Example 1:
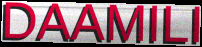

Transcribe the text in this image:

DAAMILI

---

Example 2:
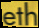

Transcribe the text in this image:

eth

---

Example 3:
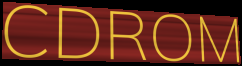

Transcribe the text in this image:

CDROM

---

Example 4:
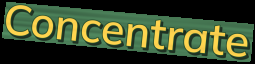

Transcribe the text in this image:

Concentrate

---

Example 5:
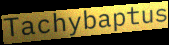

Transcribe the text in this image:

Tachybaptus